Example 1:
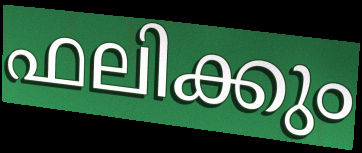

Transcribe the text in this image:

ഫലിക്കും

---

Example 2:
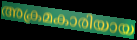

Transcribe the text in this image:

അക്രമകാരിയായ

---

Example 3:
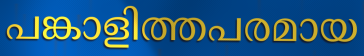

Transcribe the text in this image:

പങ്കാളിത്തപരമായ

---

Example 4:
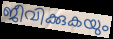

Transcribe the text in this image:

ജീവിക്കുകയും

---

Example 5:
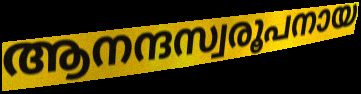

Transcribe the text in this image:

ആനന്ദസ്വരൂപനായ